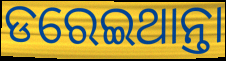
ଡରେଇଥାନ୍ତା